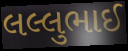
લલ્લુભાઈ